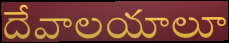
దేవాలయాలూ